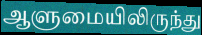
ஆளுமையிலிருந்து